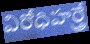
విరోధిహర్త్రే